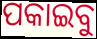
ପକାଇବୁ